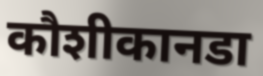
कौशीकानडा